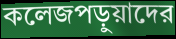
কলেজপড়ুয়াদের